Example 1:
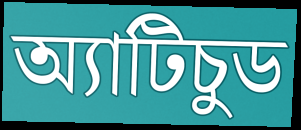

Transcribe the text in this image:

অ্যাটিচুড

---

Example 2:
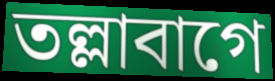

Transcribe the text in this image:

তল্লাবাগে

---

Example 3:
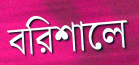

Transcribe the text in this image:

বরিশালে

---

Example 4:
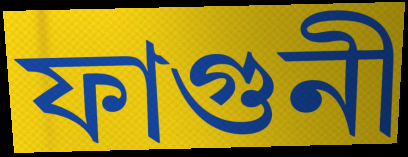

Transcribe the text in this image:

ফাগুনী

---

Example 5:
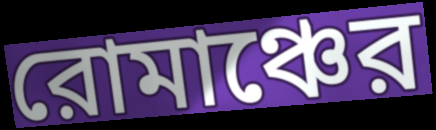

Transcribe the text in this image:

রোমাঞ্চের